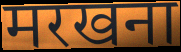
मरखना